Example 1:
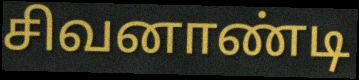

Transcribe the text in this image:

சிவனாண்டி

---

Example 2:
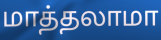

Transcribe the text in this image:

மாத்தலாமா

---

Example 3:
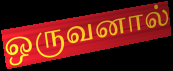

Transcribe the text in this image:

ஒருவனால்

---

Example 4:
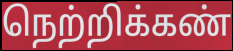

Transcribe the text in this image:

நெற்றிக்கண்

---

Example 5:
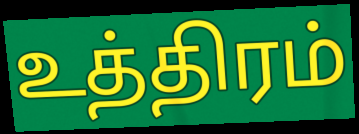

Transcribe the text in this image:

உத்திரம்